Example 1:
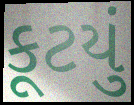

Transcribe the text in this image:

કૂટયું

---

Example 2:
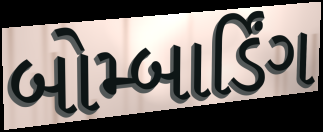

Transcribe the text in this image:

બોમ્બાર્ડિંગ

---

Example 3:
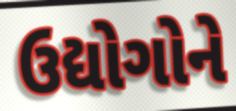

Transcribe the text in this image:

ઉદ્યોગોને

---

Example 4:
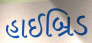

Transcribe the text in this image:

હાઈબ્રિડ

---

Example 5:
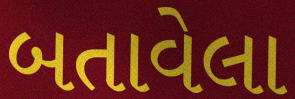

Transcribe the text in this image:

બતાવેલા